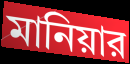
মানিয়ার